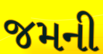
જમની